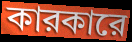
কারকারে